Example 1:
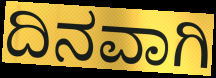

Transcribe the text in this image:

ದಿನವಾಗಿ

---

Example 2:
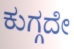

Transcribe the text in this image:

ಕುಗ್ಗದೇ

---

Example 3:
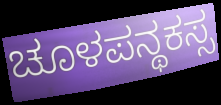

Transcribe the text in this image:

ಚೂಳಪನ್ಥಕಸ್ಸ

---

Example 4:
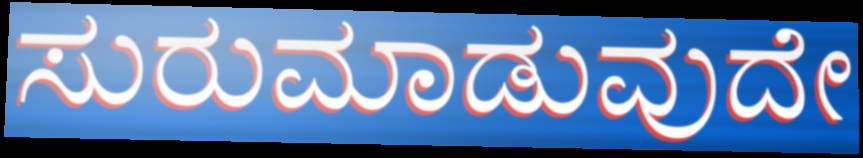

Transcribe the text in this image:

ಸುರುಮಾಡುವುದೇ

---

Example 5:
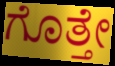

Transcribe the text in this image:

ಗೊತ್ತೇ